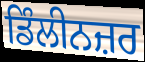
ਡਿੰਲੀਨਜ਼ਰ